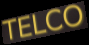
TELCO